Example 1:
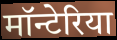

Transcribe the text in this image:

मॉन्टेरिया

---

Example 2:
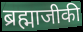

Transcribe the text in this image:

ब्रह्माजीकी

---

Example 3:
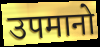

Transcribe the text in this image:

उपमानो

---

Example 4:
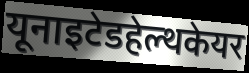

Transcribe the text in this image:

यूनाइटेडहेल्थकेयर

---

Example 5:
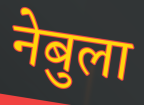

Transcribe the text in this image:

नेबुला